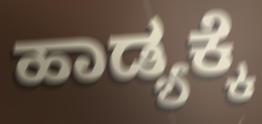
ಹಾಡ್ಯಕ್ಕೆ